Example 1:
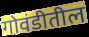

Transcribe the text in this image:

गोवंडीतील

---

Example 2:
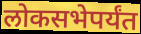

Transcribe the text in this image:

लोकसभेपर्यंत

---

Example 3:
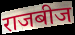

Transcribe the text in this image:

राजबीज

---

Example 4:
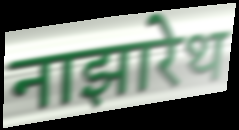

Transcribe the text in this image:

नाझारेथ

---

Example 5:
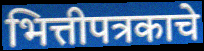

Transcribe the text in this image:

भित्तीपत्रकाचे